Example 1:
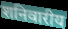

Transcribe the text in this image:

शनिवारीय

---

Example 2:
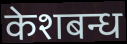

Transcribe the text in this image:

केशबन्ध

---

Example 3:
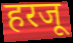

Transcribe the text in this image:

हरजू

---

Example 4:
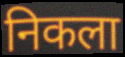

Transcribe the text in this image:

निकला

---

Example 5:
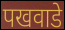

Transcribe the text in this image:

पखवाडे